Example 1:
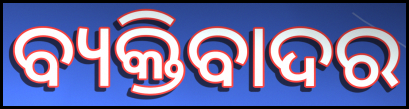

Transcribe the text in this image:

ବ୍ୟକ୍ତିବାଦର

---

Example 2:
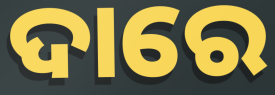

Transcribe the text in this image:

ଦାରେ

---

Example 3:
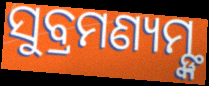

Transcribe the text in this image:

ସୁବ୍ରମଣ୍ୟମ୍ଙ୍କ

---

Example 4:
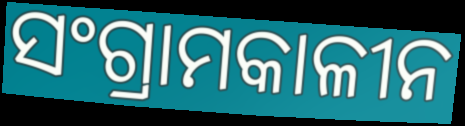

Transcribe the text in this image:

ସଂଗ୍ରାମକାଳୀନ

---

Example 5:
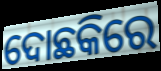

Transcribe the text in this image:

ଦୋଛକିରେ